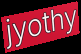
jyothy